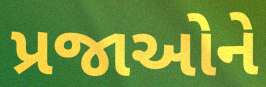
પ્રજાઓને